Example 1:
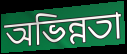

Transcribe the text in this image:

অভিন্নতা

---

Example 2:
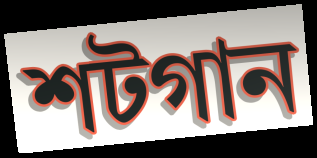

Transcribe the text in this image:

শটগান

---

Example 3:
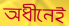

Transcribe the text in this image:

অধীনেই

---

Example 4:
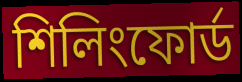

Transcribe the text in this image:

শিলিংফোর্ড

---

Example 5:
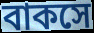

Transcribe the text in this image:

বাকসে